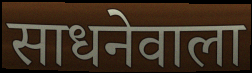
साधनेवाला